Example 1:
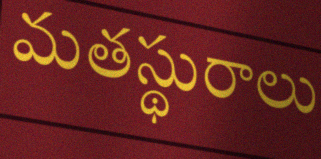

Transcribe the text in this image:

మతస్థురాలు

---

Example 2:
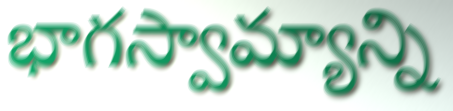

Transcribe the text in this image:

భాగస్వామ్యాన్ని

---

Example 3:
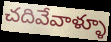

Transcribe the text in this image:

చదివేవాళ్ళూ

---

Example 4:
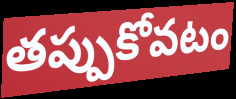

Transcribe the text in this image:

తప్పుకోవటం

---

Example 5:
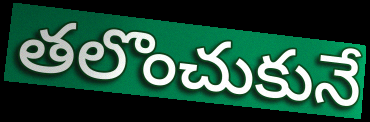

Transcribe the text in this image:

తలొంచుకునే